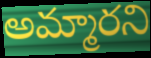
అమ్మారని